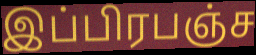
இப்பிரபஞ்ச